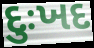
દુઃખદ